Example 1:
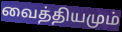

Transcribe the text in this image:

வைத்தியமும்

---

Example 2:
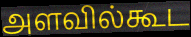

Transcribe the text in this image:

அளவில்கூட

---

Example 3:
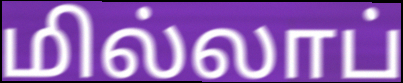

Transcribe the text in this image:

மில்லாப்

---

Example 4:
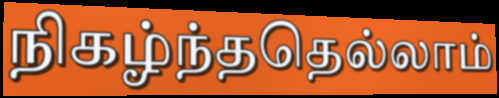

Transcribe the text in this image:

நிகழ்ந்ததெல்லாம்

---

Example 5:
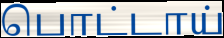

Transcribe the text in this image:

பொட்டாய்